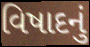
વિષાદનું